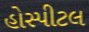
હોસ્પીટલ